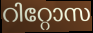
റിറ്റോസ